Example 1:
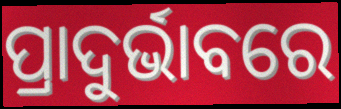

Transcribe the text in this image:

ପ୍ରାଦୁର୍ଭାବରେ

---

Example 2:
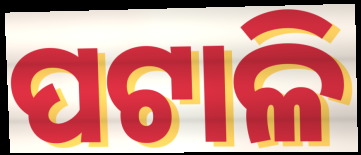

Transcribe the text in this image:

ପଟାଳି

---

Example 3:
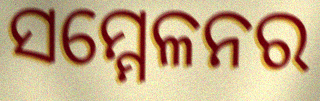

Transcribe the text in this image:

ସମ୍ମେଳନର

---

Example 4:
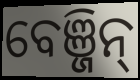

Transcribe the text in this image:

ବେଞ୍ଜିନ୍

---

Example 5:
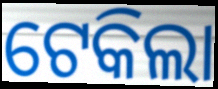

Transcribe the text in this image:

ଟେକିଲା